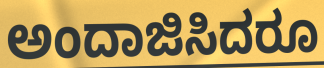
ಅಂದಾಜಿಸಿದರೂ